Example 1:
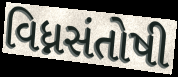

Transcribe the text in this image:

વિધ્નસંતોષી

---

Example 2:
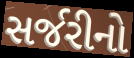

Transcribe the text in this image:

સર્જરીનો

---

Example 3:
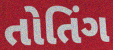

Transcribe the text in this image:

તોતિંગ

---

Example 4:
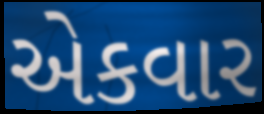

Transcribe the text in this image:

એકવાર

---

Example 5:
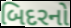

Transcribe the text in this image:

બિદરનો